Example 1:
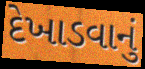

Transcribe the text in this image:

દેખાડવાનું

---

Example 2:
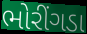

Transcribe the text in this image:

ભોરીંગડા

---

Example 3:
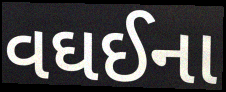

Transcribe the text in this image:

વઘઈના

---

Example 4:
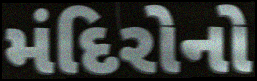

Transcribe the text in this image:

મંદિરોનો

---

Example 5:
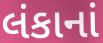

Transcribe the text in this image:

લંકાનાં